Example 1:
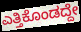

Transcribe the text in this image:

ಎತ್ತಿಕೊಂಡದ್ದೇ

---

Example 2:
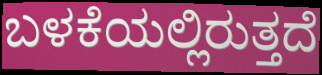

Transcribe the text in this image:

ಬಳಕೆಯಲ್ಲಿರುತ್ತದೆ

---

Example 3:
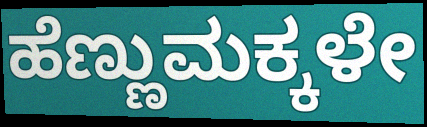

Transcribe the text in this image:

ಹೆಣ್ಣುಮಕ್ಕಳೇ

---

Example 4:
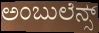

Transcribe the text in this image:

ಅಂಬುಲೆನ್ಸ್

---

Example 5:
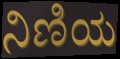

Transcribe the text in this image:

ನಿಣಿಯ